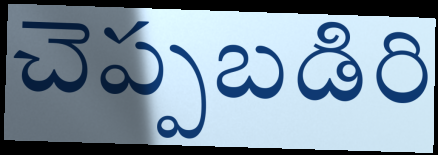
చెప్పబడిరి